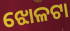
ଝୋଳଟା